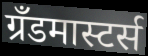
ग्रँडमास्टर्स